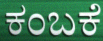
ಕಂಬಕೆ